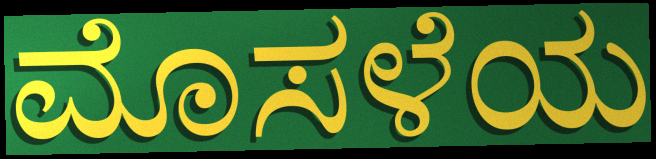
ಮೊಸಳೆಯ